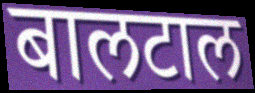
बालटाल